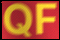
QF